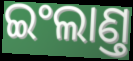
ଇଂଲାଣ୍ତ